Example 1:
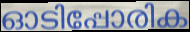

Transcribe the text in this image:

ഓടിപ്പോരിക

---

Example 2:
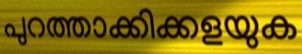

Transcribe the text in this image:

പുറത്താക്കിക്കളയുക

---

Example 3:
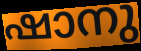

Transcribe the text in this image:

ഷാനു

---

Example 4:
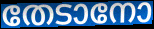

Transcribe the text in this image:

തേടാനോ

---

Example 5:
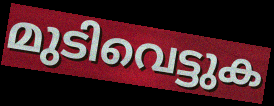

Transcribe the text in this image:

മുടിവെട്ടുക